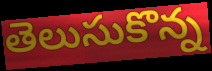
తెలుసుకొన్న